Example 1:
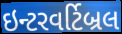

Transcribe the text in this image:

ઇન્ટરવર્ટિબ્રલ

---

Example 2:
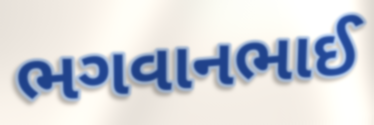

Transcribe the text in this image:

ભગવાનભાઈ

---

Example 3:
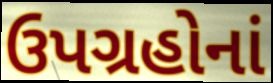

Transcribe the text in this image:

ઉપગ્રહોનાં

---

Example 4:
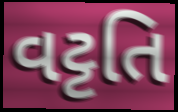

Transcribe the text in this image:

વટ્ટતિ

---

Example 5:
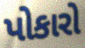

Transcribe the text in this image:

પોકારો